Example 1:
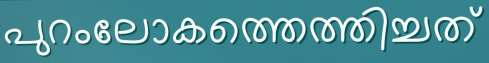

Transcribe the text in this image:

പുറംലോകത്തെത്തിച്ചത്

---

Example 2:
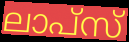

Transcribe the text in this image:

ലാപ്സ്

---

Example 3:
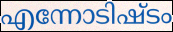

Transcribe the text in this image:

എന്നോടിഷ്ടം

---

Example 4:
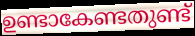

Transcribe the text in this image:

ഉണ്ടാകേണ്ടതുണ്ട്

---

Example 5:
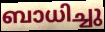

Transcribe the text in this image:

ബാധിച്ചു